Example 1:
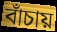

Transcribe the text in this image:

বাঁচায়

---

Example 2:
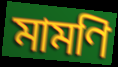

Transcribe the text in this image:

মামণি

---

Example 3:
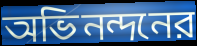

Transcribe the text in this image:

অভিনন্দনের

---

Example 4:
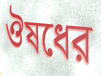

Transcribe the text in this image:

ঔষধের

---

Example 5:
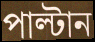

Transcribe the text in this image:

পাল্টান